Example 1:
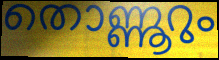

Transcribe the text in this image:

തൊണ്ണൂറും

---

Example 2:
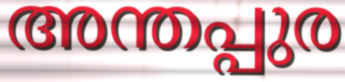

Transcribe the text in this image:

അന്തപ്പുര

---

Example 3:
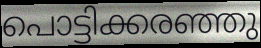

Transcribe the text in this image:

പൊട്ടിക്കരഞ്ഞു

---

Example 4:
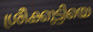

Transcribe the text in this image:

ശ്രീക്കുട്ടിയെ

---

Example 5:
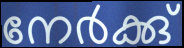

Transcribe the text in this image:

നേർക്കു്